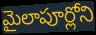
మైలాపూర్లోని